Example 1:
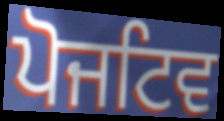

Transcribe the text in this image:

ਪੋਜਟਿਵ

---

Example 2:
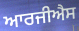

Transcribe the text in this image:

ਆਰਜੀਐਸ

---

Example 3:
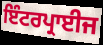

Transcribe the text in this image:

ਇੰਟਰਪ੍ਰਾਈਜ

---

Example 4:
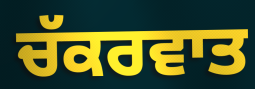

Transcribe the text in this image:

ਚੱਕਰਵਾਤ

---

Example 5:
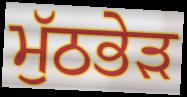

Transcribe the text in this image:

ਮੁੱਠਭੇੜ